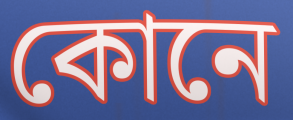
কোনে